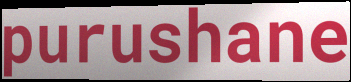
purushane